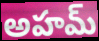
అహమ్